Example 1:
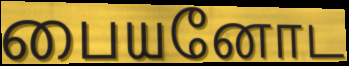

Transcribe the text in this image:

பையனோட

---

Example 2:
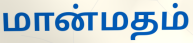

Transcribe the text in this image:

மான்மதம்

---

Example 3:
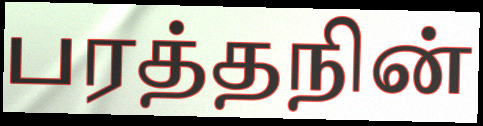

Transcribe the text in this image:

பரத்தநின்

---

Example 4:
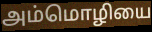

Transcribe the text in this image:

அம்மொழியை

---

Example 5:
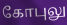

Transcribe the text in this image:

கோபுலு